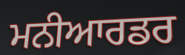
ਮਨੀਆਰਡਰ